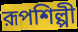
রূপশিল্পী